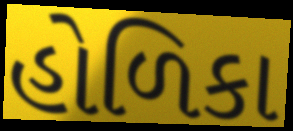
હોળિકા